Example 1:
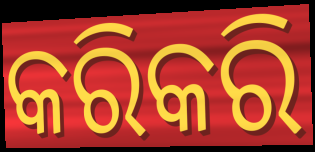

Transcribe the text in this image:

କରିକରି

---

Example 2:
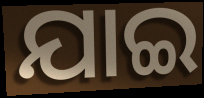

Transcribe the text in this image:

ଯାଇ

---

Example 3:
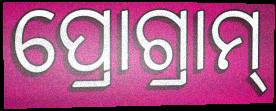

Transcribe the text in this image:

ପ୍ରୋଗ୍ରାମ୍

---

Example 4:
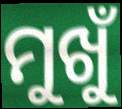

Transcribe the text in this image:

ମୁଖୁଁ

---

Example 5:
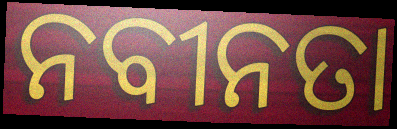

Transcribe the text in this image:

ନବୀନତା